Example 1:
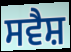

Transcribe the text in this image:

ਸਵੈਸ਼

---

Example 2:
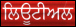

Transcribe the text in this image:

ਲਿਊਟੀਅਲ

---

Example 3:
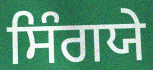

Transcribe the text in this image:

ਸਿੰਗਯੇ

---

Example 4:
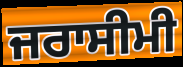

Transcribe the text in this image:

ਜਰਾਸੀਮੀ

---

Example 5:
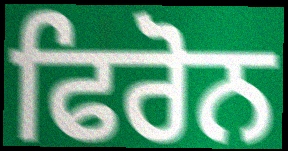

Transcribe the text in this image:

ਫਿਰੋਨ